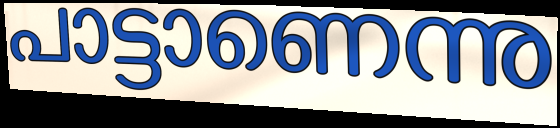
പാട്ടാണെന്നു